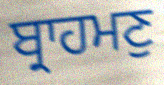
ਬ੍ਰਾਹਮਣੁ